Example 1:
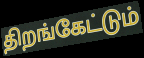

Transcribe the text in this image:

திறங்கேட்டும்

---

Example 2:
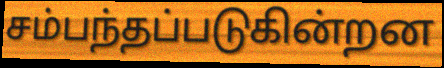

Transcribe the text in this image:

சம்பந்தப்படுகின்றன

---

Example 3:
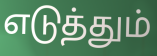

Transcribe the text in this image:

எடுத்தும்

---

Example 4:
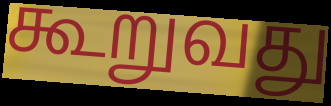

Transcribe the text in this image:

கூறுவது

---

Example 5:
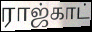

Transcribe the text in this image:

ராஜ்காட்